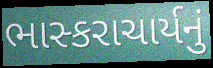
ભાસ્કરાચાર્યનું